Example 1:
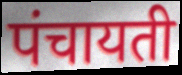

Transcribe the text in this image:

पंचायती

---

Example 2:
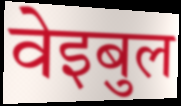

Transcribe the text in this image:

वेइबुल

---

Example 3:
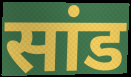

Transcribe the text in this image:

सांड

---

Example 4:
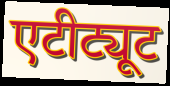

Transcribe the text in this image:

एटीट्यूट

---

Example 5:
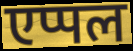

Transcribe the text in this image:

एप्पल